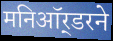
मनिऑर्डरने